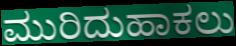
ಮುರಿದುಹಾಕಲು